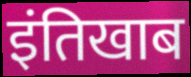
इंतिखाब